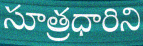
సూత్రధారిని